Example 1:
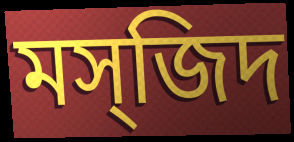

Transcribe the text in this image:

মস্জিদ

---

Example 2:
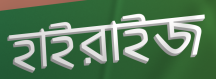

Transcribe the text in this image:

হাইরাইজ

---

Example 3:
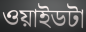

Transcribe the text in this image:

ওয়াইডটা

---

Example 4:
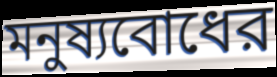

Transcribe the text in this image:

মনুষ্যবোধের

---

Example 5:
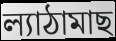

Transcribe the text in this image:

ল্যাঠামাছ